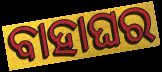
ବାହାଘର